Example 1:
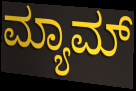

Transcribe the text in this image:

ಮ್ಯಾಮ್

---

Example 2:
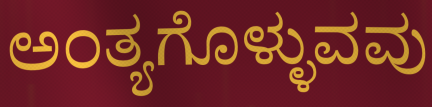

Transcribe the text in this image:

ಅಂತ್ಯಗೊಳ್ಳುವವು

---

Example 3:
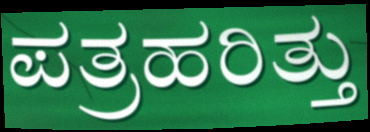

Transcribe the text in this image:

ಪತ್ರಹರಿತ್ತು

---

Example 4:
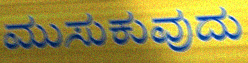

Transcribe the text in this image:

ಮುಸುಕುವುದು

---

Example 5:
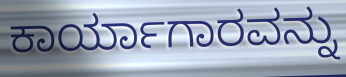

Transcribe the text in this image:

ಕಾರ್ಯಾಗಾರವನ್ನು